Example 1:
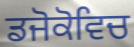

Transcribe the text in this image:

ਡਜੋਕੋਵਿਚ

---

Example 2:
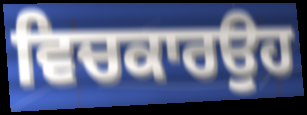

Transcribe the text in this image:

ਵਿਚਕਾਰਉਹ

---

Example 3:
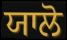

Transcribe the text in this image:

ਯਾਲੋ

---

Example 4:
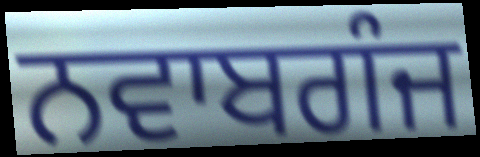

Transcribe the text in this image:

ਨਵਾਬਗੰਜ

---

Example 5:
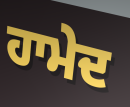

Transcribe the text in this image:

ਹਾਮੇਦ